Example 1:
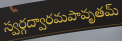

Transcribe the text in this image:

స్వర్గద్వారమపావృతమ్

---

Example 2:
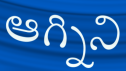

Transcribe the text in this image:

ఆగ్నిని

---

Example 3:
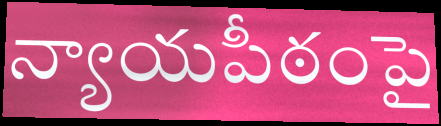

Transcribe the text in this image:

న్యాయపీఠంపై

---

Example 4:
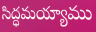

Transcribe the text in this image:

సిద్ధమయ్యాము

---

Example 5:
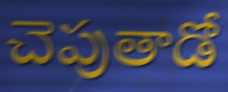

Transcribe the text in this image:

చెపుతాడో